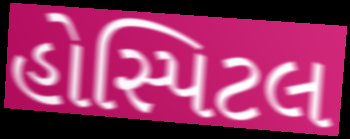
હોસ્પિટલ